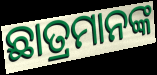
ଛାତ୍ରମାନଙ୍କ